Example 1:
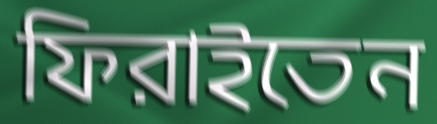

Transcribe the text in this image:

ফিরাইতেন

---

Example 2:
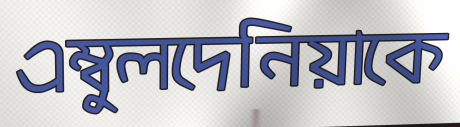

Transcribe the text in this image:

এম্বুলদেনিয়াকে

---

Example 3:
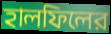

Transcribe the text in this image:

হালফিলের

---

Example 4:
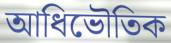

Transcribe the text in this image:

আধিভৌতিক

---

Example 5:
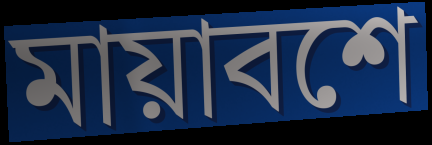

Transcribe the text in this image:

মায়াবশে